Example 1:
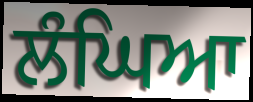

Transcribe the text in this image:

ਲੰਘਿਆ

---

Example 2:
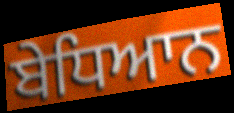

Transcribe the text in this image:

ਬੇਧਿਆਨ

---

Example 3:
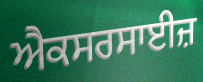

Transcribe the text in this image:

ਐਕਸਰਸਾਈਜ਼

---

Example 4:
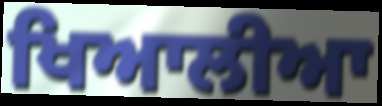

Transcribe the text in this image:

ਖਿਆਲੀਆ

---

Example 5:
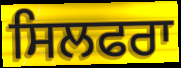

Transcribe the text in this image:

ਸਿਲਫਰਾ